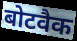
बोटवैक